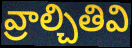
వ్రాల్చితివి